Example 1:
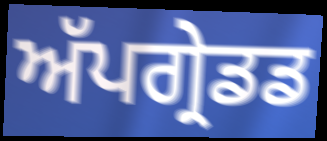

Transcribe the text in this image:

ਅੱਪਗ੍ਰੇਡਡ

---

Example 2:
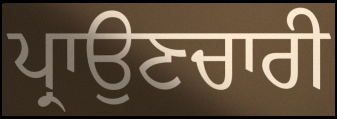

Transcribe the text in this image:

ਪ੍ਰਾਉਣਚਾਰੀ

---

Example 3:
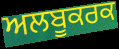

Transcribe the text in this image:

ਅਲਬੂਕਰਕ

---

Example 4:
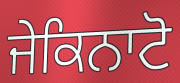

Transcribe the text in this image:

ਜੇਕਿਨਾਟੋ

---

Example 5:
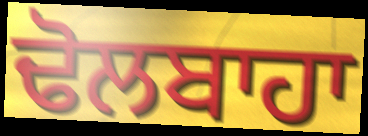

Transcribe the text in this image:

ਢੋਲਬਾਹਾ